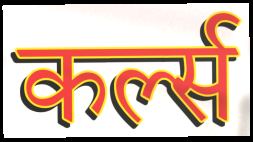
कर्ल्स